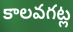
కాలవగట్ల